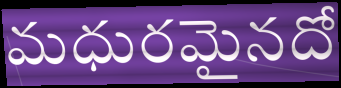
మధురమైనదో